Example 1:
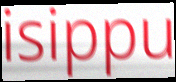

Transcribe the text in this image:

isippu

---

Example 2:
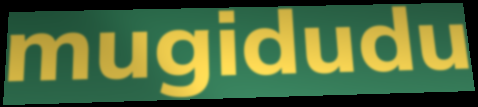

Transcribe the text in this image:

mugidudu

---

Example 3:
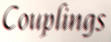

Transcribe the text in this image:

Couplings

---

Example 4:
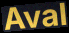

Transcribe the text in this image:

Aval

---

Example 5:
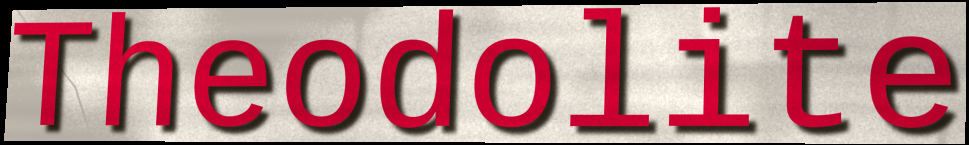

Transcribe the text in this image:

Theodolite